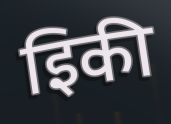
इिकी